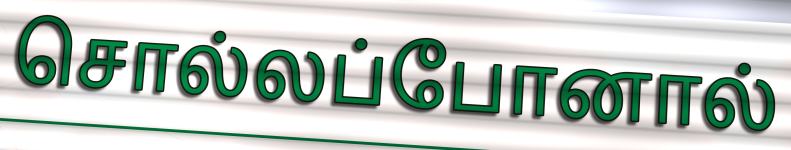
சொல்லப்போனால்